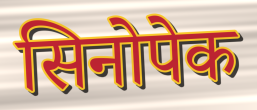
सिनोपेक